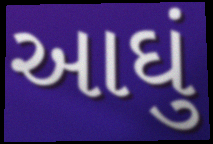
આઘું